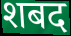
शबद